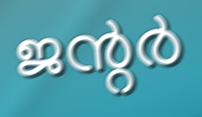
ജന്റർ